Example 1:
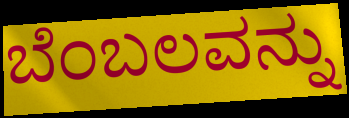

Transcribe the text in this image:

ಬೆಂಬಲವನ್ನು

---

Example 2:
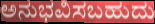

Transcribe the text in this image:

ಅನುಭವಿಸಬಹುದು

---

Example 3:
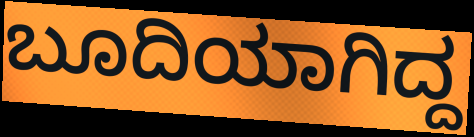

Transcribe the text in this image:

ಬೂದಿಯಾಗಿದ್ದ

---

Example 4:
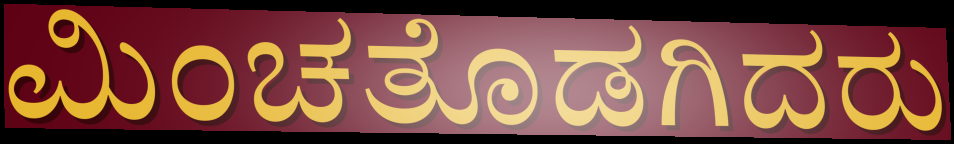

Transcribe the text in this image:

ಮಿಂಚತೊಡಗಿದರು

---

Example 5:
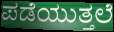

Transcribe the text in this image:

ಪಡೆಯುತ್ತಲೆ